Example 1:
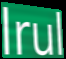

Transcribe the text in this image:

Irul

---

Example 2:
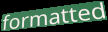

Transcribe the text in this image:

formatted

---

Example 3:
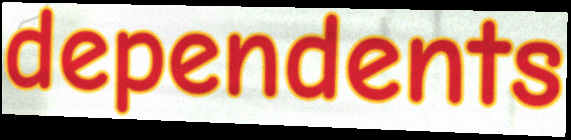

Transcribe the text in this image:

dependents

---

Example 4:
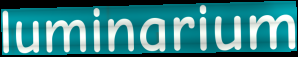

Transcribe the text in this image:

luminarium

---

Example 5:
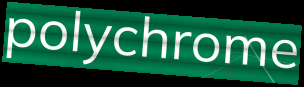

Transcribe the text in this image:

polychrome